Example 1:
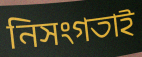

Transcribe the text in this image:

নিসংগতাই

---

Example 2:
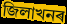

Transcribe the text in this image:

জিলাখনৰ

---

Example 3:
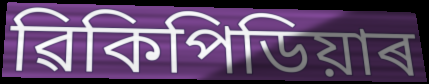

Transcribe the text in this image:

ৱিকিপিডিয়াৰ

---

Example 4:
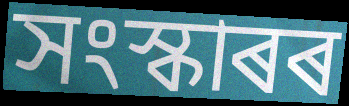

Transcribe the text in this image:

সংস্কাৰৰ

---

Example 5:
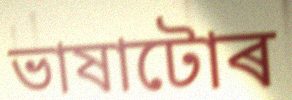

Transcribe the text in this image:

ভাষাটোৰ